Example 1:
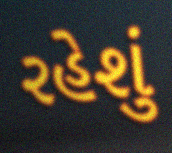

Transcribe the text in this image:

રહેશું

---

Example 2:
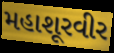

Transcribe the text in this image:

મહાશૂરવીર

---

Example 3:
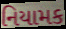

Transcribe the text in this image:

નિયામક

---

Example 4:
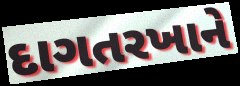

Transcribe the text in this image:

દાગતરખાને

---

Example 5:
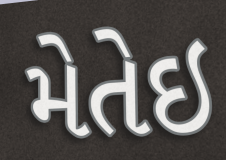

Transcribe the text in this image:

મેતેઇ